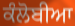
ਕੰਲੋਬੀਆ